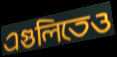
এগুলিতেও